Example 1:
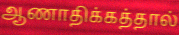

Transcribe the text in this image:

ஆணாதிக்கத்தால்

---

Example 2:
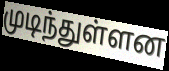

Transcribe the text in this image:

முடிந்துள்ளன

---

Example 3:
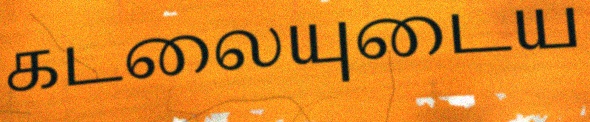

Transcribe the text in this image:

கடலையுடைய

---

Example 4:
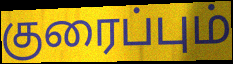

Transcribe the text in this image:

குரைப்பும்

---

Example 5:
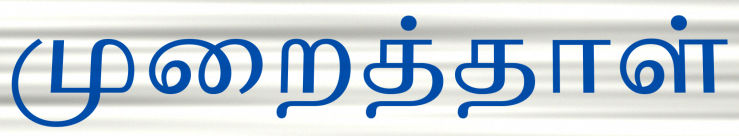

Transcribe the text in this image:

முறைத்தாள்